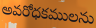
అవరోధకములను